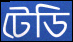
টেডি